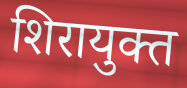
शिरायुक्त